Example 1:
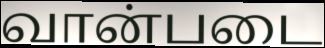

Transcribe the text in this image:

வான்படை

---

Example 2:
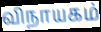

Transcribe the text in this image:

விநாயகம்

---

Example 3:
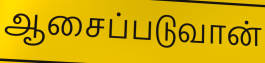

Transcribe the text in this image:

ஆசைப்படுவான்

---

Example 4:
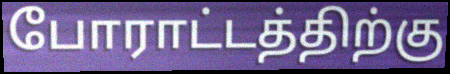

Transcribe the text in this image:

போராட்டத்திற்கு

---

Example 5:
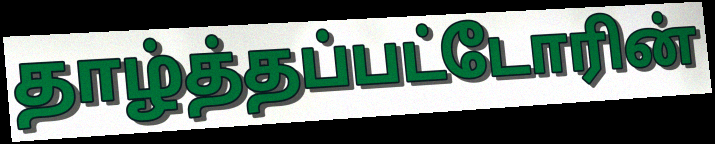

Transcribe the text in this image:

தாழ்த்தப்பட்டோரின்